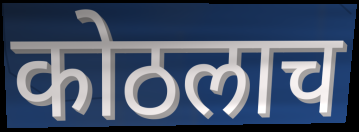
कोठलाच